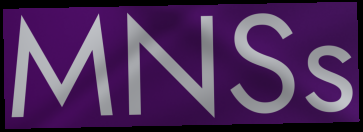
MNSs